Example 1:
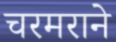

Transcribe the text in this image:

चरमराने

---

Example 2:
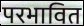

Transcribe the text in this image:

परभावित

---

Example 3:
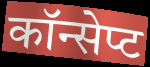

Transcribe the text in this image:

कॉन्‍सेप्‍ट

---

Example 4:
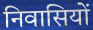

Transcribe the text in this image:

निवासियों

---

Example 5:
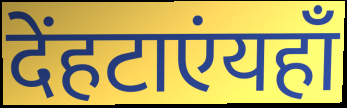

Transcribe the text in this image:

देंहटाएंयहाँ